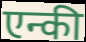
एन्की